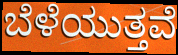
ಬೆಳೆಯುತ್ತವೆ